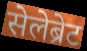
सेलेब्रेट